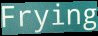
Frying